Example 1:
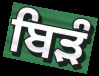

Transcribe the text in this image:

ਬਿੜੰ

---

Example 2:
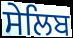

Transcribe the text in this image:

ਸੇਲਿਬ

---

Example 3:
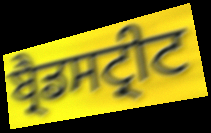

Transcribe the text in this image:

ਬ੍ਰੈਡਸਟ੍ਰੀਟ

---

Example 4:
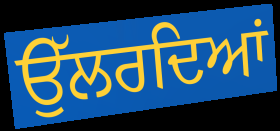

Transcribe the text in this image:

ਉੱਲਰਦਿਆਂ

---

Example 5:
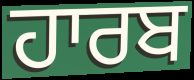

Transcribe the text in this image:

ਹਾਰਬ